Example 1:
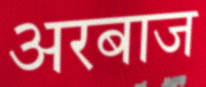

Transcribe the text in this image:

अरबाज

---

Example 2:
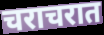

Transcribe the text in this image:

चराचरात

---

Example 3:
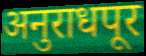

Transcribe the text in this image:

अनुराधपूर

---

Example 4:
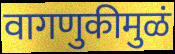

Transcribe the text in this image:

वागणुकीमुळं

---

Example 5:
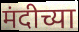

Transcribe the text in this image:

मंदीच्या